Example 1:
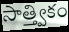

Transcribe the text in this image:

సాత్త్వికం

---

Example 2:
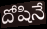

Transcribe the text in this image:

దోషినే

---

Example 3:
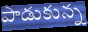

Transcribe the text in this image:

పాడుకున్న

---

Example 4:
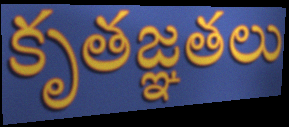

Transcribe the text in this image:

కృతజ్ఞతలు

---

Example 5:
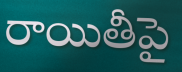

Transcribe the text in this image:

రాయితీపై